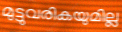
മുട്ടുവരികയുമില്ല